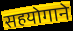
सहयोगाने